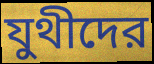
যুথীদের